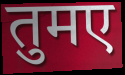
तुमए